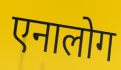
एनालोग